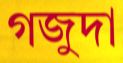
গজুদা